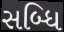
સબ્ધિ